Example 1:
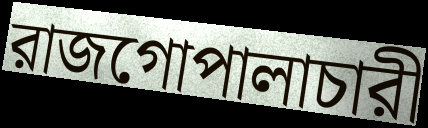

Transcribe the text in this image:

রাজগোপালাচারী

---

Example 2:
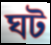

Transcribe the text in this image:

ঘট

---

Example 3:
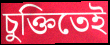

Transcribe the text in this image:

চুক্তিতেই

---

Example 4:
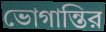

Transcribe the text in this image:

ভোগান্তির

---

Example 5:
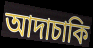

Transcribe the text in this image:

আদাচাকি